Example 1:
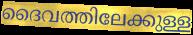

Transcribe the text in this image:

ദൈവത്തിലേക്കുള്ള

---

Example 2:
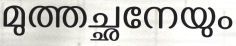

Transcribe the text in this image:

മുത്തച്ഛനേയും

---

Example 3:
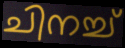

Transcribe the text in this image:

ചിനച്ച്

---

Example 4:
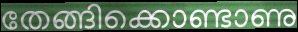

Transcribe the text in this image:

തേങ്ങിക്കൊണ്ടാണു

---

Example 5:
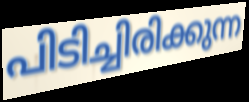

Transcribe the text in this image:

പിടിച്ചിരിക്കുന്ന